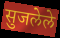
सुजलेले